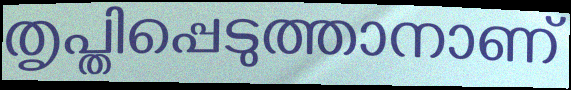
തൃപ്തിപ്പെടുത്താനാണ്